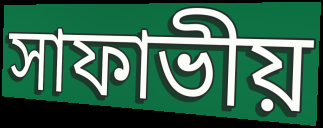
সাফাভীয়